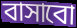
বাসাবো